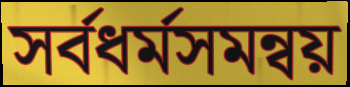
সর্বধর্মসমন্বয়